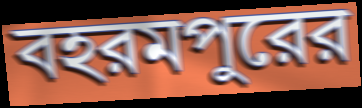
বহরমপুরের